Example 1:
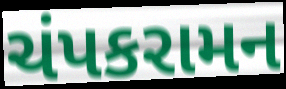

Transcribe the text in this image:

ચંપકરામન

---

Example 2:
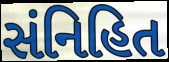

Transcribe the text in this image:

સંનિહિત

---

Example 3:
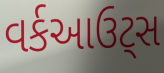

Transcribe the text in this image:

વર્કઆઉટ્સ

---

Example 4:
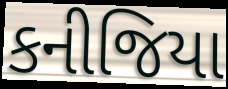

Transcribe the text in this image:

કનીજિયા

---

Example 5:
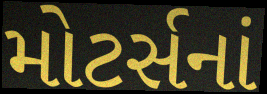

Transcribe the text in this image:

મોટર્સનાં